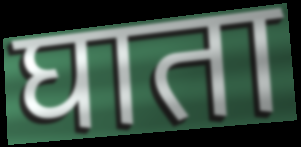
घाता